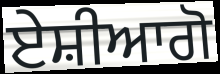
ਏਸ਼ੀਆਗੋ